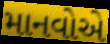
માનવોએ